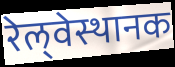
रेल्वेस्थानक